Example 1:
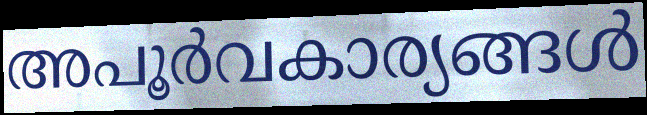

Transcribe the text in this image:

അപൂർവകാര്യങ്ങൾ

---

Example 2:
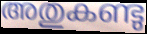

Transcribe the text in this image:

അതുകണ്ടു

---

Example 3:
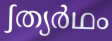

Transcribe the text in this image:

ഽത്യർഥം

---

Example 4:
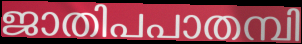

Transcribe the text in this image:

ജാതിപപാതമ്പി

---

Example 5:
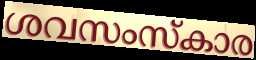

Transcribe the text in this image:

ശവസംസ്കാര